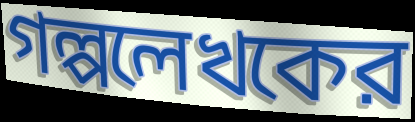
গল্পলেখকের